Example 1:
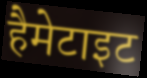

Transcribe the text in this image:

हैमेटाइट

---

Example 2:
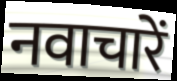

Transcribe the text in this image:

नवाचारें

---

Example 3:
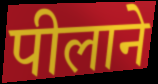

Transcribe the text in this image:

पीलाने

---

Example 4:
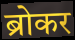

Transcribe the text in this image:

ब्रोकर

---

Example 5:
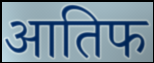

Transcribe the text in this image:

आतिफ